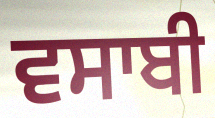
ਵਸਾਬੀ